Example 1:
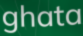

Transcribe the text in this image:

ghata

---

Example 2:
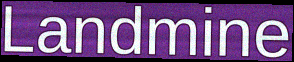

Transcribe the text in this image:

Landmine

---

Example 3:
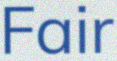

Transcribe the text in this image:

Fair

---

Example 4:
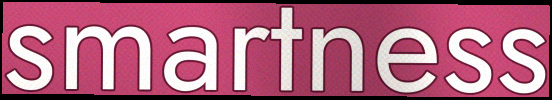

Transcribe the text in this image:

smartness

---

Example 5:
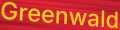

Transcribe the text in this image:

Greenwald